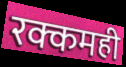
रक्कमही